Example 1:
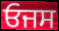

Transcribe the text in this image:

ਓਜਸ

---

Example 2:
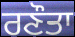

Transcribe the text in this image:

ਰਣੌਤਾ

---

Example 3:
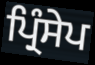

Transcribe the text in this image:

ਪ੍ਰਿੰਸੇਪ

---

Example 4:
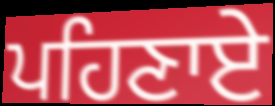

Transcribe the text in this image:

ਪਹਿਣਾਏ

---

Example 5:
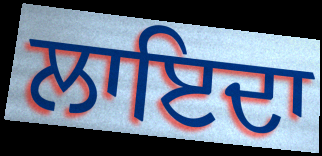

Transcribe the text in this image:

ਲਾਇਦਾ